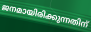
ജനമായിരിക്കുന്നതിന്